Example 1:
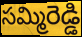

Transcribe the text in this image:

సమ్మిరెడ్డి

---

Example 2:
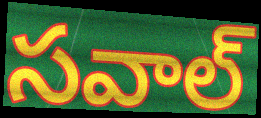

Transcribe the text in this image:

సవాల్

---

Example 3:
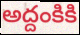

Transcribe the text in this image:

అద్దంకికి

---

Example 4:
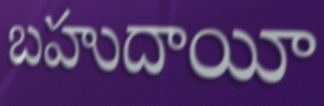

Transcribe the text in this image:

బహుదాయీ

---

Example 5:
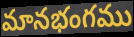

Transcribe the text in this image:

మానభంగము